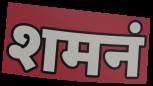
शमनं